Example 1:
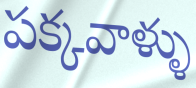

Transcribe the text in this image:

పక్కవాళ్ళు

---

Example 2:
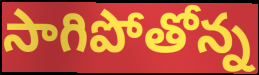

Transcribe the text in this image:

సాగిపోతోన్న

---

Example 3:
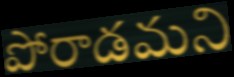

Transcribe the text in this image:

పోరాడమని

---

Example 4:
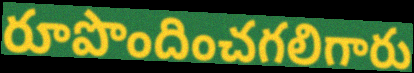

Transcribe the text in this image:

రూపొందించగలిగారు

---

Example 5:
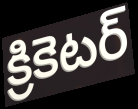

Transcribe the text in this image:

క్రికెటర్